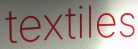
textiles